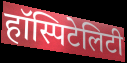
हॉस्पिटेलिटी